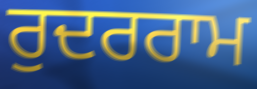
ਰੁਦਰਰਾਮ